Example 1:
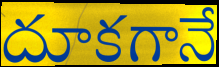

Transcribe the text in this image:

దూకగానే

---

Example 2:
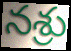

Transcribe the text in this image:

నశ్రు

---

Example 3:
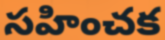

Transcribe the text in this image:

సహించక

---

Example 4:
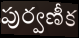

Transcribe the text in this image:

పుర్వణీక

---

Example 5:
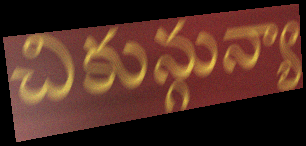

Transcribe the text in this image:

చికున్గున్యా